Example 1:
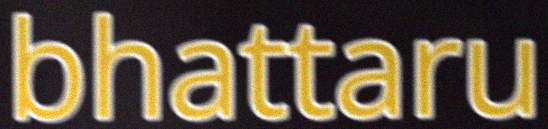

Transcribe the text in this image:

bhattaru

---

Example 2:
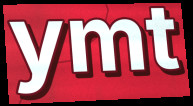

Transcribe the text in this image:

ymt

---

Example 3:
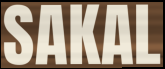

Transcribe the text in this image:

SAKAL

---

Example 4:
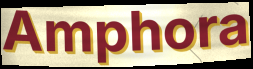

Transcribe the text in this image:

Amphora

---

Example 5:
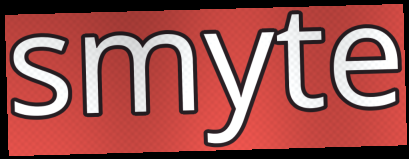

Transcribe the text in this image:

smyte